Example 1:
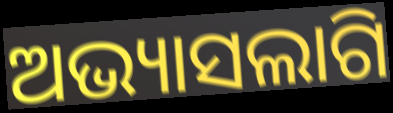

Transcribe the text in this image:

ଅଭ୍ୟାସଲାଗି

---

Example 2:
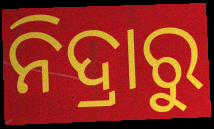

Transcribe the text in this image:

ନିଦ୍ରାରୁ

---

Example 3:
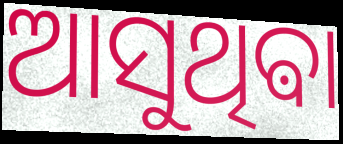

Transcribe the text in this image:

ଆସୁଥିଵା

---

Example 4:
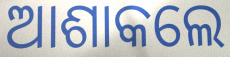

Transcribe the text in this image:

ଆଶାକଲେ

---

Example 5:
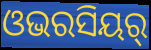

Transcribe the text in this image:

ଓଭରସିୟର୍